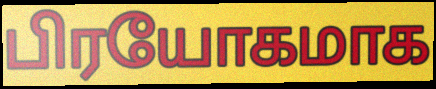
பிரயோகமாக